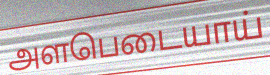
அளபெடையாய்